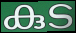
കുട